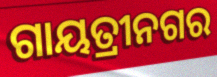
ଗାୟତ୍ରୀନଗର